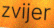
zvijer